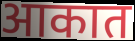
आकात